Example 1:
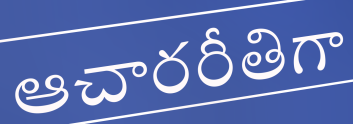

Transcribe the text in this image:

ఆచారరీతిగా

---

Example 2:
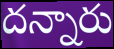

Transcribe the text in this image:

దన్నారు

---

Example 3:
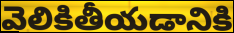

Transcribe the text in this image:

వెలికితీయడానికి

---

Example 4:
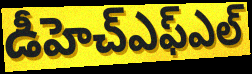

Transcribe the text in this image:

డీహెచ్ఎఫ్ఎల్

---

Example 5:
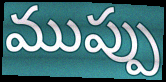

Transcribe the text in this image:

ముప్పు